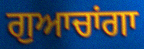
ਗੁਆਚਾਂਗਾ